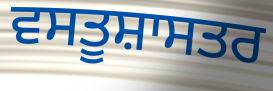
ਵਸਤੂਸ਼ਾਸਤਰ